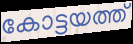
കോട്ടയത്ത്